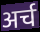
अर्च